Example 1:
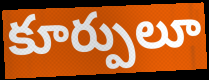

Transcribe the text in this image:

కూర్పులూ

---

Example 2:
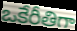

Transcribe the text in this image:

ఒకేరీతిగా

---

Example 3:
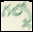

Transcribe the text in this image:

గల్ఫ్లో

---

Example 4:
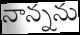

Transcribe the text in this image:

నాన్నను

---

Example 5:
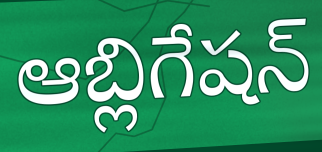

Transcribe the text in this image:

ఆబ్లిగేషన్